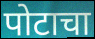
पोटाचा